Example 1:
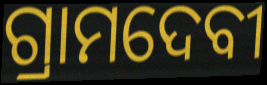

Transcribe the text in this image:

ଗ୍ରାମଦେବୀ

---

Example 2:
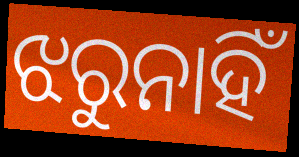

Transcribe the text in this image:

ଝରୁନାହିଁ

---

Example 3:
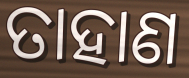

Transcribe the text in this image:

ତାହାଣ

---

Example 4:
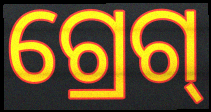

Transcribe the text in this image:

ଗ୍ରେଗ୍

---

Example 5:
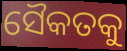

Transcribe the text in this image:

ସୈକତକୁ